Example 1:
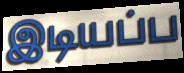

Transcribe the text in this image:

இடியப்ப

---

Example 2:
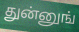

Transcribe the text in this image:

துன்னுங்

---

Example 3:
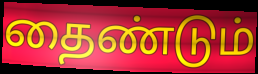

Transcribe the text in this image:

தைண்டும்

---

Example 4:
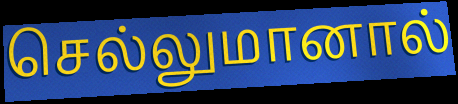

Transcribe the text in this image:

செல்லுமானால்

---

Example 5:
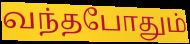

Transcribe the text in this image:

வந்தபோதும்